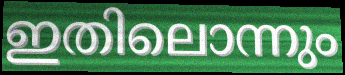
ഇതിലൊന്നും